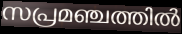
സപ്രമഞ്ചത്തിൽ